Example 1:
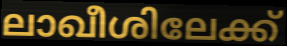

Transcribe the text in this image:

ലാഖീശിലേക്ക്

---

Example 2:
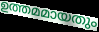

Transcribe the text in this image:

ഉത്തമമായതും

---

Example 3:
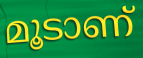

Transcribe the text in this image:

മൂടാണ്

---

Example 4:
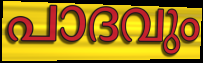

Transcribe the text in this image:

പാദവും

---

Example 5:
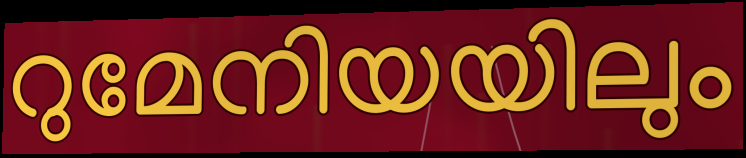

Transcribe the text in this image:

റുമേനിയയിലും